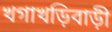
খগাখড়িবাড়ী